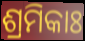
ଶ୍ରମିକାଃ